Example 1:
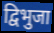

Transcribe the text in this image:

द्विभुजा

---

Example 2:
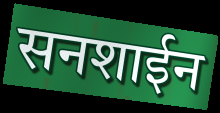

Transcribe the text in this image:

सनशाईन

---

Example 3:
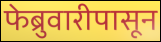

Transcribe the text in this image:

फेब्रुवारीपासून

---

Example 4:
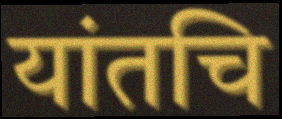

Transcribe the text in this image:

यांतचि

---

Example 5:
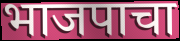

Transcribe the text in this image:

भाजपाचा